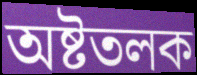
অষ্টতলক